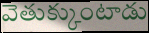
వెతుక్కుంటాడు